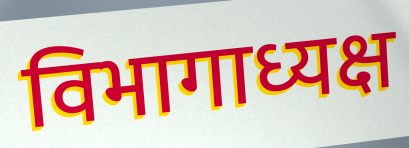
विभागाध्यक्ष